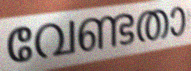
വേണ്ടതാ